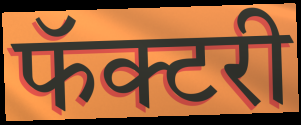
फॅक्‍टरी